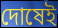
দোষেই